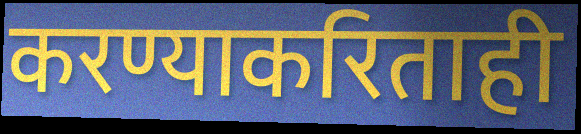
करण्याकरिताही